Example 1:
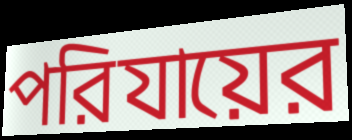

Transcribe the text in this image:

পরিযায়ের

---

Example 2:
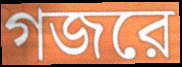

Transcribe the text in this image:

গজরে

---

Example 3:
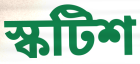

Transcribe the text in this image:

স্কটিশ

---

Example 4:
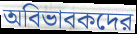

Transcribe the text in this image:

অবিভাবকদের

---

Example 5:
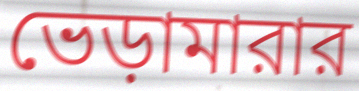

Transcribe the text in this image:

ভেড়ামারার